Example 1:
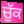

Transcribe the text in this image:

ਚੁੱਕ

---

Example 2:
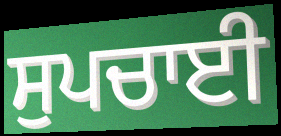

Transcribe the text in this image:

ਸੁਪਚਾਈ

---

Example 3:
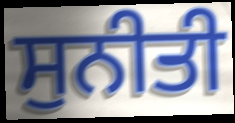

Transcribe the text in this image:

ਸੁਨੀਤੀ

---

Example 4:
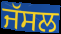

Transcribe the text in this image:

ਜੱਸਲ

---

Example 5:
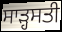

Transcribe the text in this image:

ਸਾੜ੍ਹਸਤੀ